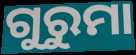
ଗୁରୁମା